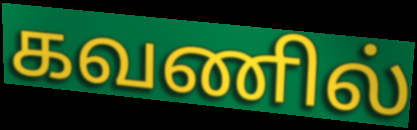
கவணில்